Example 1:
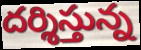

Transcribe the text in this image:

దర్శిస్తున్న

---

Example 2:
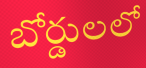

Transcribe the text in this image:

బోర్డులలో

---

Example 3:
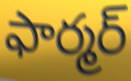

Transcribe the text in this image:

ఫార్మర్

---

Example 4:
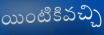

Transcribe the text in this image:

యింటికివచ్చి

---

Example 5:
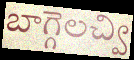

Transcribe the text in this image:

బాగ్గెలచ్వి